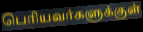
பெரியவர்களுக்குள்